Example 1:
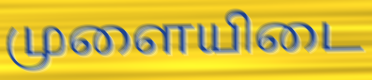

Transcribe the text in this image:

முளையிடை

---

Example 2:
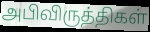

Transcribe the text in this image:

அபிவிருத்திகள்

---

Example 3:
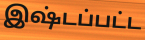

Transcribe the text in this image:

இஷ்டப்பட்ட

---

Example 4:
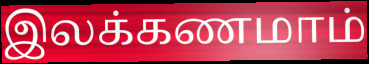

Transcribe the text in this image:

இலக்கணமாம்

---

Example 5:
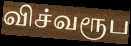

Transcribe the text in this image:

விச்வரூப